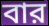
বার